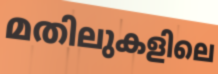
മതിലുകളിലെ